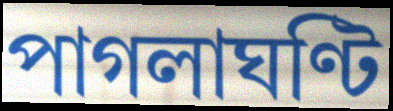
পাগলাঘণ্টি